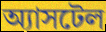
অ্যাসটেল